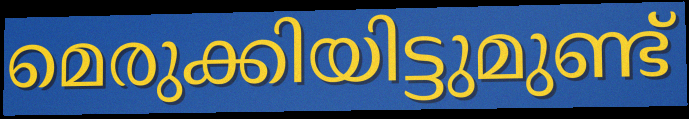
മെരുക്കിയിട്ടുമുണ്ട്